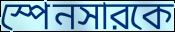
স্পেনসারকে